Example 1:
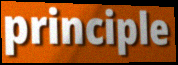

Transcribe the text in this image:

principle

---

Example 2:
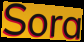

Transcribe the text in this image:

Sora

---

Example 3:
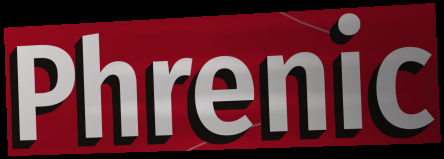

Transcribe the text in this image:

Phrenic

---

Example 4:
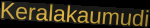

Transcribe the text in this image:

Keralakaumudi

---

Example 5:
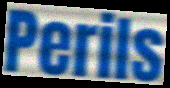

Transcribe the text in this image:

Perils